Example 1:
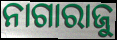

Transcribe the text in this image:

ନାଗାରାଜୁ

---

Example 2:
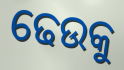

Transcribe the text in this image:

ଢେଉକୁ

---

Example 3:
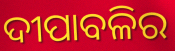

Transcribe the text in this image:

ଦୀପାବଳିର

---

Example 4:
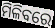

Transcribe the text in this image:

ମିଳିବରେ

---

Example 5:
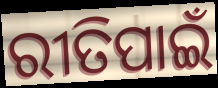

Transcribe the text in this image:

ରୀତିପାଇଁ